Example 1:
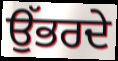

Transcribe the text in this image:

ਉੱਭਰਦੇ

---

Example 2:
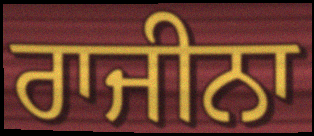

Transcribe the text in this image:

ਰਾਜੀਨਾ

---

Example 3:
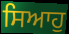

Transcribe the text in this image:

ਸਿਆਹੁ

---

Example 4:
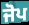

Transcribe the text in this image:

ਜੋਪ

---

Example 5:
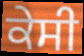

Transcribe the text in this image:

ਕੇਸੀ